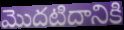
మొదటిదానికి